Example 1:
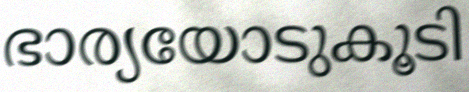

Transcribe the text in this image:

ഭാര്യയോടുകൂടി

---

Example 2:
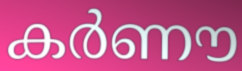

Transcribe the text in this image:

കർണൗ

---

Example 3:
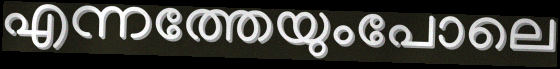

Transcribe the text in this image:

എന്നത്തേയുംപോലെ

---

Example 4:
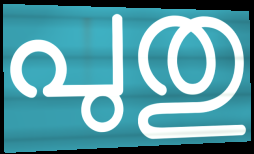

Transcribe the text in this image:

പുതു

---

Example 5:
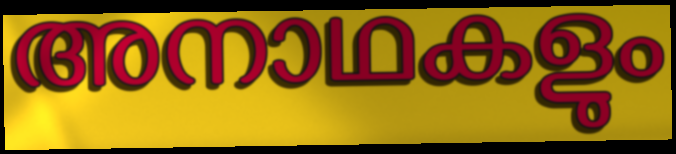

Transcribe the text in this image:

അനാഥകളും